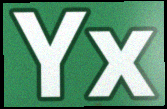
Yx